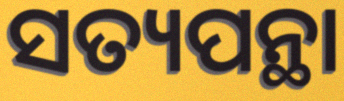
ସତ୍ୟପନ୍ଥା